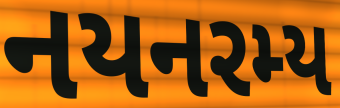
નયનરમ્ય